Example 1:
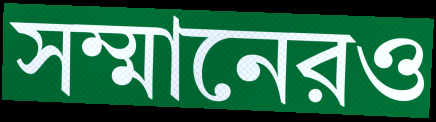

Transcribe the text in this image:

সম্মানেরও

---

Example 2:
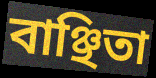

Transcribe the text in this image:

বাঞ্ছিতা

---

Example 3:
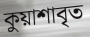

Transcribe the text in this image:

কুয়াশাবৃত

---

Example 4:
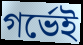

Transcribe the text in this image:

গর্ভেই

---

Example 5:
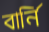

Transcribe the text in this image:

বার্নি